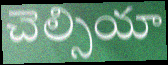
చెల్సియా